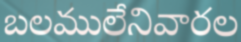
బలములేనివారల